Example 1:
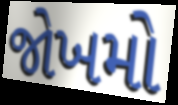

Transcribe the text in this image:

જોખમો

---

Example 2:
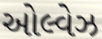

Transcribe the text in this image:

ઓલ્વેઝ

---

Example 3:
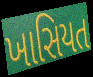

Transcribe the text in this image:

ખાસિયત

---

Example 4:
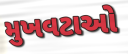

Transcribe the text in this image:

મુખવટાઓ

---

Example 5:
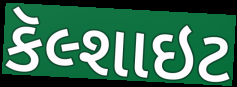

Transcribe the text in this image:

કૅલ્શાઇટ